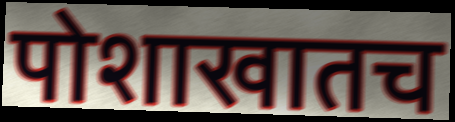
पोशाखातच